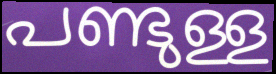
പണ്ടുള്ള